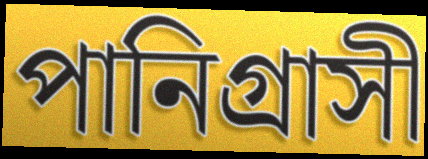
পানিগ্রাসী